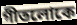
গীতলোকে